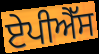
ਏਪੀਐੱਸ